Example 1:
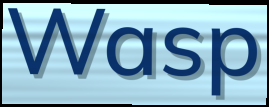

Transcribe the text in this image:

Wasp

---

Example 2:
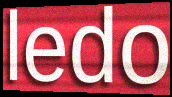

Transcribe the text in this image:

ledo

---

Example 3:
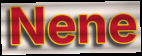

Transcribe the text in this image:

Nene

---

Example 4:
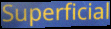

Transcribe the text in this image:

Superficial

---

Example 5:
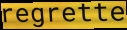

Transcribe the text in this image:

regrette